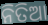
ନିତିଆ